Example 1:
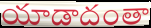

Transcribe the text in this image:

యాడాదంతా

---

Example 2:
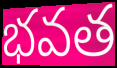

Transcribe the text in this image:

భవత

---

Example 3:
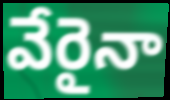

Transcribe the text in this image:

వేరైనా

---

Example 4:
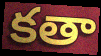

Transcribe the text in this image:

కతా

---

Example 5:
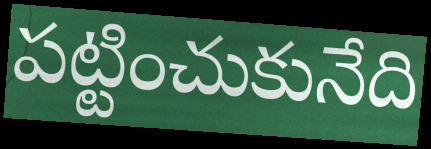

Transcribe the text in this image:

పట్టించుకునేది